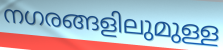
നഗരങ്ങളിലുമുള്ള